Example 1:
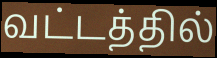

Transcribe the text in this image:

வட்டத்தில்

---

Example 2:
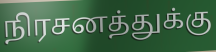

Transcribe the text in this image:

நிரசனத்துக்கு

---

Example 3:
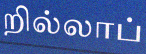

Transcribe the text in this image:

றில்லாப்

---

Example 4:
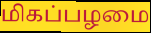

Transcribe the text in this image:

மிகப்பழமை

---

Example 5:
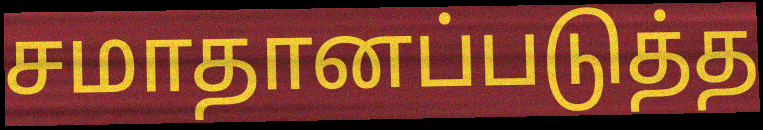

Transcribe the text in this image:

சமாதானப்படுத்த